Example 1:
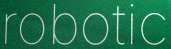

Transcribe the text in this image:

robotic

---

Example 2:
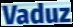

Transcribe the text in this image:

Vaduz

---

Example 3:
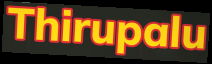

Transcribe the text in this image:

Thirupalu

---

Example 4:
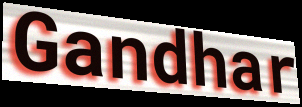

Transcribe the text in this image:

Gandhar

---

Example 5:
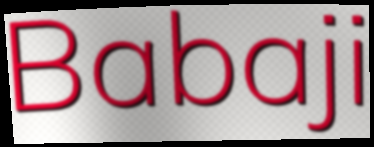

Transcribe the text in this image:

Babaji